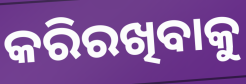
କରିରଖିବାକୁ